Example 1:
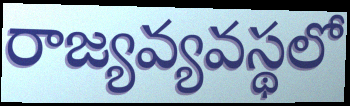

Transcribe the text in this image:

రాజ్యవ్యవస్థలో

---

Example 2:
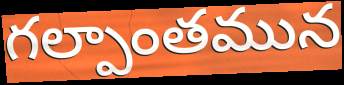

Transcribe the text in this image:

గల్పాంతమున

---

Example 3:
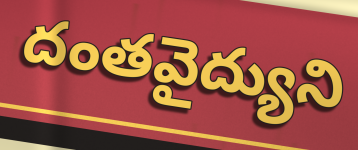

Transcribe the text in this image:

దంతవైద్యుని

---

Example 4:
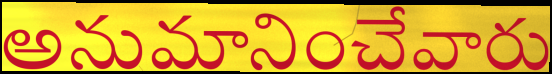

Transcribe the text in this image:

అనుమానించేవారు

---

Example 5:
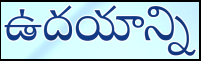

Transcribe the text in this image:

ఉదయాన్ని